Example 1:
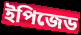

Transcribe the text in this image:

ইপিজেড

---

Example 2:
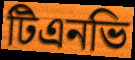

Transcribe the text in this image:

টিএনভি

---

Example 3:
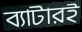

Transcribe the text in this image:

ব্যাটারই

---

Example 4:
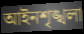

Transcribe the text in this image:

আইনশৃঙ্খলা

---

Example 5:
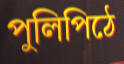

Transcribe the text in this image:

পুলিপিঠে